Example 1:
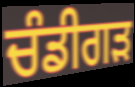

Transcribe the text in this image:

ਚੰਡੀਗਡ਼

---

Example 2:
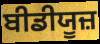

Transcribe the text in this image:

ਬੀਡੀਯੂਜ਼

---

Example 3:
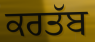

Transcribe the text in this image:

ਕਰਤੱਬ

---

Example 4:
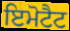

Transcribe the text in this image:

ਇਮੋਟੈਟ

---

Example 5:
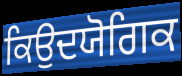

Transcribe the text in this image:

ਕਿਉਦਯੋਗਿਕ